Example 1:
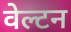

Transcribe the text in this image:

वेल्टन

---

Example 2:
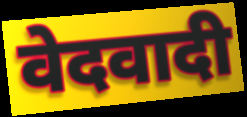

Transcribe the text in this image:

वेदवादी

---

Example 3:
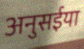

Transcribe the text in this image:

अनुसईया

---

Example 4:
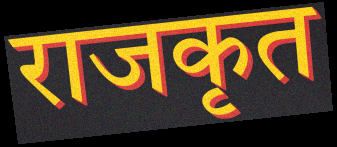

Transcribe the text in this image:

राजकृत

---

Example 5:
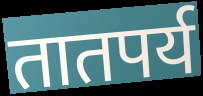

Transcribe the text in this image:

तातपर्य